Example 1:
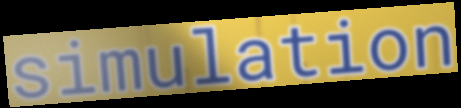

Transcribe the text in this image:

simulation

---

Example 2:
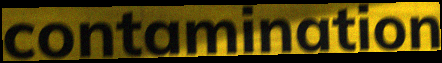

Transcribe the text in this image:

contamination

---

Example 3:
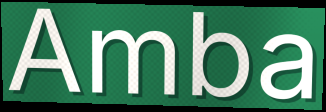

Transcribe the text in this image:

Amba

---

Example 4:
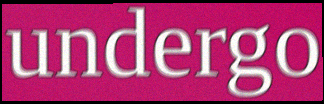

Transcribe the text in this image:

undergo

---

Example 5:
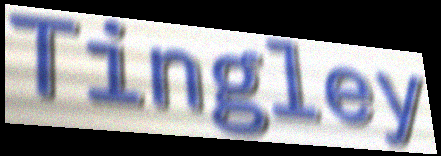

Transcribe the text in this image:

Tingley